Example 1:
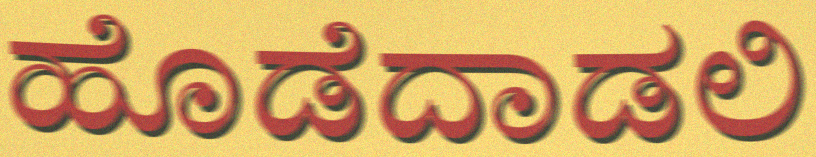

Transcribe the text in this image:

ಹೊಡೆದಾಡಲಿ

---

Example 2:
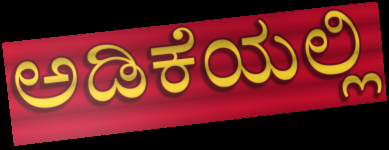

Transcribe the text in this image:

ಅಡಿಕೆಯಲ್ಲಿ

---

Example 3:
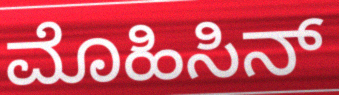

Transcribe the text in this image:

ಮೊಹಿಸಿನ್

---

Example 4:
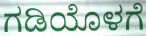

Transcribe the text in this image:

ಗಡಿಯೊಳಗೆ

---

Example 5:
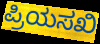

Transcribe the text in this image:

ಪ್ರಿಯಸಖಿ